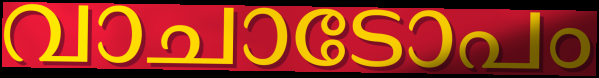
വാചാടോപം